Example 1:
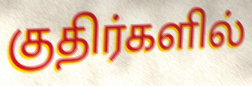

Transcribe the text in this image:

குதிர்களில்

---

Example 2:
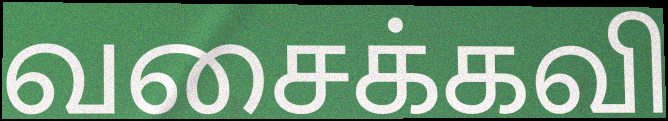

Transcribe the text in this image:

வசைக்கவி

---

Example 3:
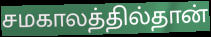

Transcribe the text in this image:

சமகாலத்தில்தான்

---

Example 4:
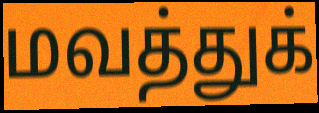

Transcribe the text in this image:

மவத்துக்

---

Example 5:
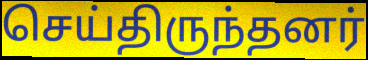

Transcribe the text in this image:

செய்திருந்தனர்